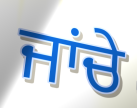
ਜਾਂਚੇ